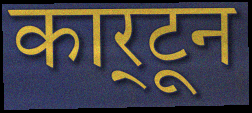
कार्टून